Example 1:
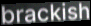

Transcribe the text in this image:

brackish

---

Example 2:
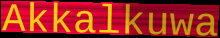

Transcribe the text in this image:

Akkalkuwa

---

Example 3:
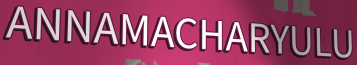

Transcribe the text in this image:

ANNAMACHARYULU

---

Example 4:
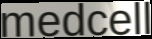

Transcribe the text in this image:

medcell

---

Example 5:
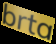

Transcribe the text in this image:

brta